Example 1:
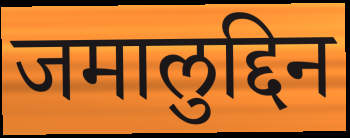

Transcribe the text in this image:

जमालुद्दिन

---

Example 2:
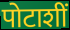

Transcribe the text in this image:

पोटाशीं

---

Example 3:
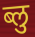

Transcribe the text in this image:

ब्लु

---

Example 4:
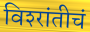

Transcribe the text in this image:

विश्रांतीचं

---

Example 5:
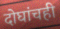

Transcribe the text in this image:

दोघांचही